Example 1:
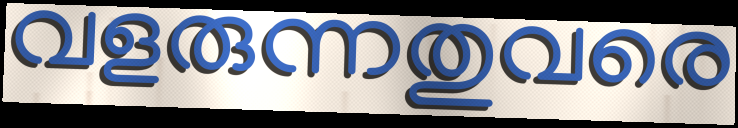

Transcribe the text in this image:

വളരുന്നതുവരെ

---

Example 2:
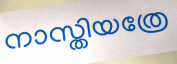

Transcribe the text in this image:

നാസ്തിയത്രേ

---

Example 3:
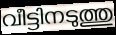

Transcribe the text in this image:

വീട്ടിനടുത്തു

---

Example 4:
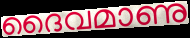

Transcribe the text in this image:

ദൈവമാണു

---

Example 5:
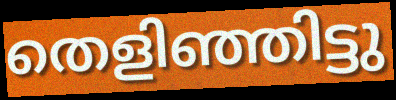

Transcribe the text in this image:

തെളിഞ്ഞിട്ടു